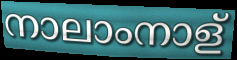
നാലാംനാള്